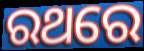
ରଥରେ